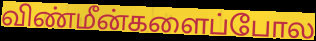
விண்மீன்களைப்போல